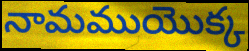
నామముయొక్క